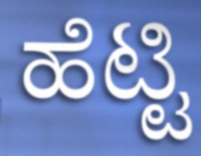
ಹೆಟ್ಟಿ